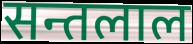
सन्तलाल